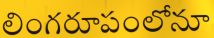
లింగరూపంలోనూ